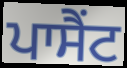
ਪਾਸੈਂਟ